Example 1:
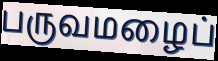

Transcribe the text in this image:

பருவமழைப்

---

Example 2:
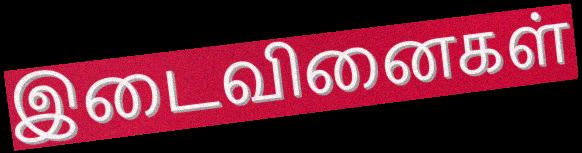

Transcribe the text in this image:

இடைவினைகள்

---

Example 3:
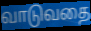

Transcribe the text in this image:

வாடுவதை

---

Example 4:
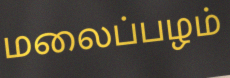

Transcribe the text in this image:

மலைப்பழம்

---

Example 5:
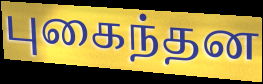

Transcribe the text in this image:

புகைந்தன